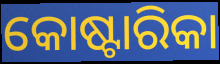
କୋଷ୍ଟାରିକା